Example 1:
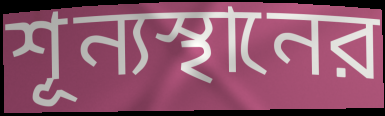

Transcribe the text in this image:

শূন্যস্থানের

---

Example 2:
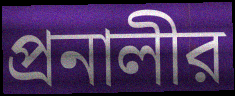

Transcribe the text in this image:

প্রনালীর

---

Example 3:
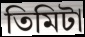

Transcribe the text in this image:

তিমিটা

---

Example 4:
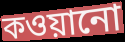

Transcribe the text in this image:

কওয়ানো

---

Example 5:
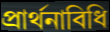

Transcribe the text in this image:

প্রার্থনাবিধি